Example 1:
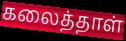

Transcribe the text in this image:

கலைத்தாள்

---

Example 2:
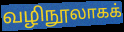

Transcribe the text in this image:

வழிநூலாகக்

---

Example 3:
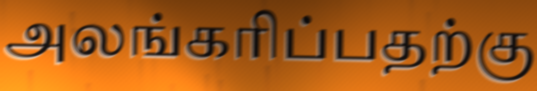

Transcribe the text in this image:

அலங்கரிப்பதற்கு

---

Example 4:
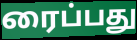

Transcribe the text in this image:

ரைப்பது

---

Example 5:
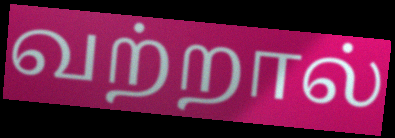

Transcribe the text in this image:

வற்றால்